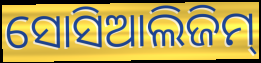
ସୋସିଆଲିଜିମ୍